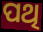
ପଥି